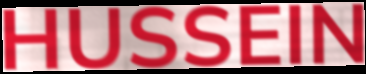
HUSSEIN